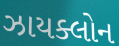
ઝાયક્લોન